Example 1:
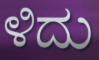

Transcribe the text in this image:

ಳಿದು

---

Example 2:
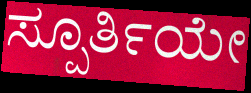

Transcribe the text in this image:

ಸ್ಪೂರ್ತಿಯೇ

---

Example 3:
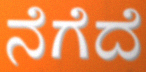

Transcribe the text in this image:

ನೆಗೆದೆ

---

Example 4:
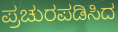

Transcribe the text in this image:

ಪ್ರಚುರಪಡಿಸಿದ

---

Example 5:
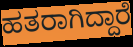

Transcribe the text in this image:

ಹತರಾಗಿದ್ದಾರೆ